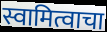
स्वामित्वाचा